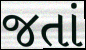
જતાં